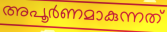
അപൂർണമാകുന്നത്